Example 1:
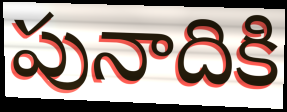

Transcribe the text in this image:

పునాదికి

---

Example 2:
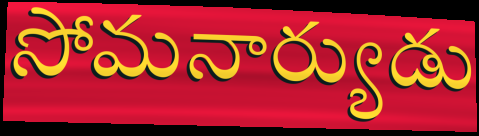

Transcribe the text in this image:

సోమనార్యుడు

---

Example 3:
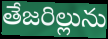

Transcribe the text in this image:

తేజరిల్లును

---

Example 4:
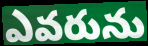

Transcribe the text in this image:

ఎవరును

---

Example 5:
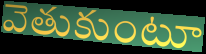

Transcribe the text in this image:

వెతుకుంటూ